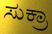
ಸುಕ್ರಾ